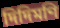
দিদিমণি